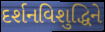
દર્શનવિશુદ્ધિને